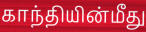
காந்தியின்மீது